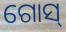
ଗୋସ୍